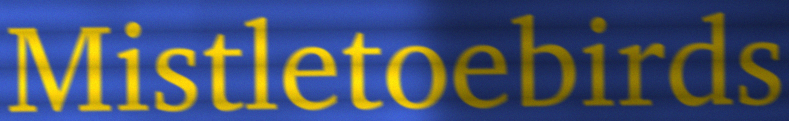
Mistletoebirds